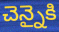
చెన్నైకి